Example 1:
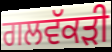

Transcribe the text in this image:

ਗਲਵੱਕਡ਼ੀ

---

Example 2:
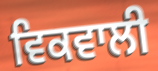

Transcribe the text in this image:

ਵਿਕਵਾਲੀ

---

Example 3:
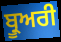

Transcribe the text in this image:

ਬ੍ਰੂਅਰੀ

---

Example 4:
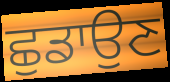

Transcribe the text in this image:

ਛੁਡਾਉਣ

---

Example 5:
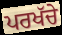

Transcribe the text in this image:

ਪਰਖੱਚੇ